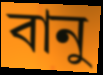
বানু